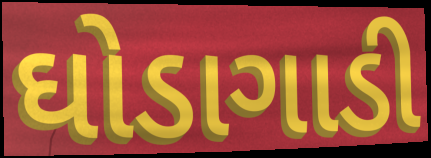
ઘોડાગાડી